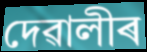
দেৱালীৰ